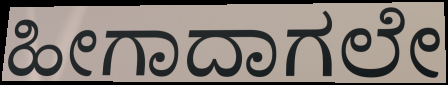
ಹೀಗಾದಾಗಲೇ